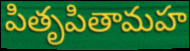
పితృపితామహ